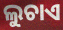
ଲୁଚାଏ